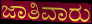
ಜಾತಿವಾರು